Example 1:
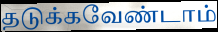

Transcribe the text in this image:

தடுக்கவேண்டாம்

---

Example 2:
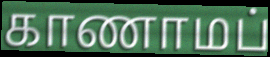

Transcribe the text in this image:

காணாமப்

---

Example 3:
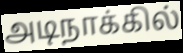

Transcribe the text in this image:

அடிநாக்கில்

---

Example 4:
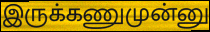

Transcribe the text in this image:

இருக்கணுமுன்னு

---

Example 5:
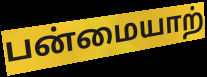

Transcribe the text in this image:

பன்மையாற்